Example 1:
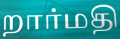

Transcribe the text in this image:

றார்மதி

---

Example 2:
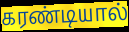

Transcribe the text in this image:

கரண்டியால்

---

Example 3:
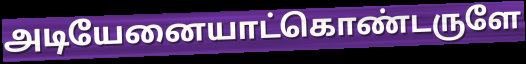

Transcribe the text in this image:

அடியேனையாட்கொண்டருளே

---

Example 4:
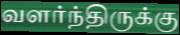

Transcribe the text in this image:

வளர்ந்திருக்கு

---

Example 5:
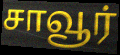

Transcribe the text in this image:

சாவூர்